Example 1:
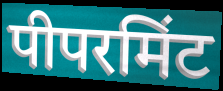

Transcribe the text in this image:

पीपरमिंट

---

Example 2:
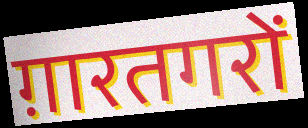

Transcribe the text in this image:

ग़ारतगरों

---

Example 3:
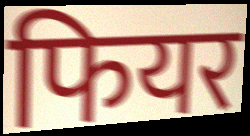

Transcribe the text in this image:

फियर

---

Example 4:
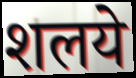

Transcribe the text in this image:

शलये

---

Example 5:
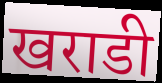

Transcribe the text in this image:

खराडी